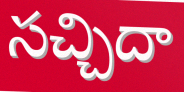
సచ్చిదా